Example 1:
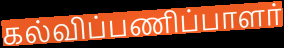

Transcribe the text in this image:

கல்விப்பணிப்பாளர்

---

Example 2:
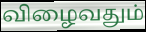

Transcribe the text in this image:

விழைவதும்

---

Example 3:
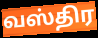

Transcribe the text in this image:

வஸ்திர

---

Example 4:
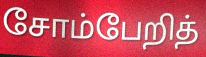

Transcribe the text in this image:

சோம்பேறித்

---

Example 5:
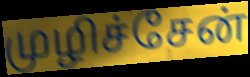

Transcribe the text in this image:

முழிச்சேன்